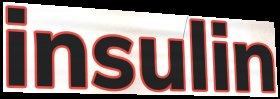
insulin